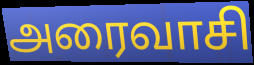
அரைவாசி